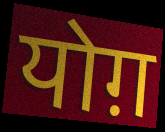
योग़